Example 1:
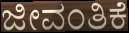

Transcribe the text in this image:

ಜೀವಂತಿಕೆ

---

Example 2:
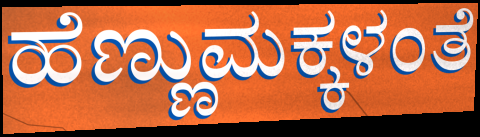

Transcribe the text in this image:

ಹೆಣ್ಣುಮಕ್ಕಳಂತೆ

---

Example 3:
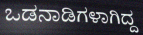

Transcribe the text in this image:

ಒಡನಾಡಿಗಳಾಗಿದ್ದ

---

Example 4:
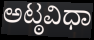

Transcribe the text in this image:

ಅಟ್ಠವಿಧಾ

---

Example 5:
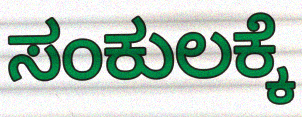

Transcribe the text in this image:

ಸಂಕುಲಕ್ಕೆ